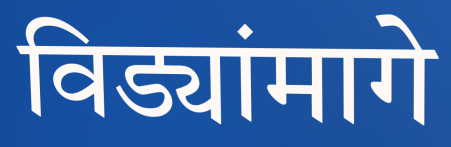
विड्यांमागे